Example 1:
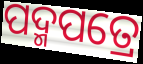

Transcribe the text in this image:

ପଦ୍ମପତ୍ରେ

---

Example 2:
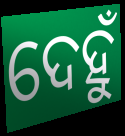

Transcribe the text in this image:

ଦେହୁଁ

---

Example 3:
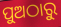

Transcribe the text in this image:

ପୁଅଠାରୁ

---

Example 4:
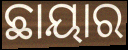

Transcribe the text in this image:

ଛାୟାର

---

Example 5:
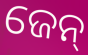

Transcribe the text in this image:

ଜେନ୍